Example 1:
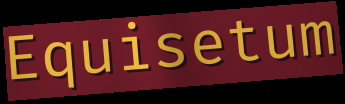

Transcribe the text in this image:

Equisetum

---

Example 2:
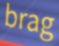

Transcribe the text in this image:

brag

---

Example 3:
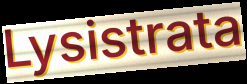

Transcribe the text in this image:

Lysistrata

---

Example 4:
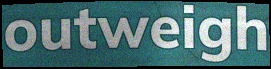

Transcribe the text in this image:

outweigh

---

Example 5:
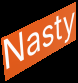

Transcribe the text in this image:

Nasty